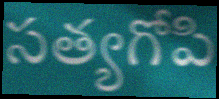
సత్యగోపి